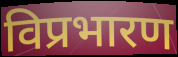
विप्रभारण